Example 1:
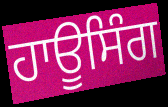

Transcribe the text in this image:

ਹਾਊਸਿੰਗ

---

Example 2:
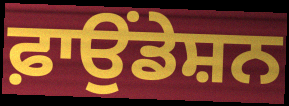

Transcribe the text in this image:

ਫ਼ਾਉਂਡੇਸ਼ਨ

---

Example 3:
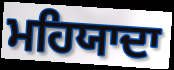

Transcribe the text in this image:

ਮਹਿਯਾਦਾ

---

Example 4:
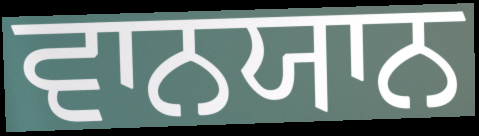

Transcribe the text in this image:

ਵਾਨਯਾਨ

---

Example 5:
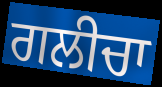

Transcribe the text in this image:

ਗਲੀਚਾ